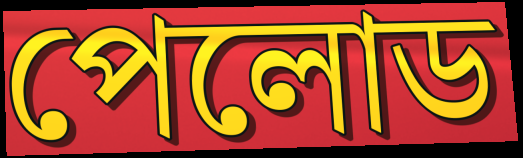
পেলোড